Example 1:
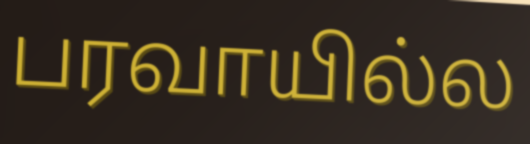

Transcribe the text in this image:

பரவாயில்ல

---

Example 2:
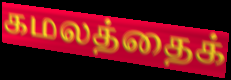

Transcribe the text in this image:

கமலத்தைக்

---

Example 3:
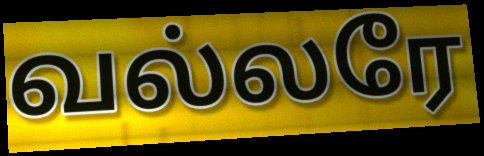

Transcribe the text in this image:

வல்லரே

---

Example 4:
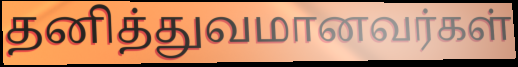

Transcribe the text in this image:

தனித்துவமானவர்கள்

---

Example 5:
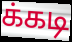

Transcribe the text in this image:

க்கடி